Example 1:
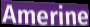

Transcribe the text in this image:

Amerine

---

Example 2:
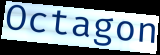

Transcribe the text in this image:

Octagon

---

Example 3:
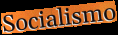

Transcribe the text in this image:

Socialismo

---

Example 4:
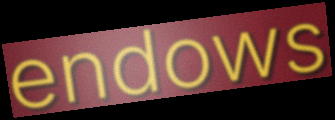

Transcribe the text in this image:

endows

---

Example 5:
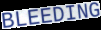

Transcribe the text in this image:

BLEEDING